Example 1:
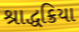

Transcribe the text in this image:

શ્રાદ્ધક્રિયા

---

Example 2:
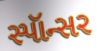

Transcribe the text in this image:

સ્પૉન્સર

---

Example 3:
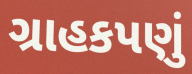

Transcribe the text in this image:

ગ્રાહકપણું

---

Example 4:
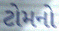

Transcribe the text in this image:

ટોમનો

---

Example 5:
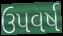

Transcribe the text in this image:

ઉપવર્ષ